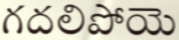
గదలిపోయె